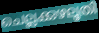
ചെല്ലക്കുഴലൂതി